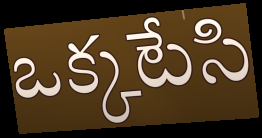
ఒక్కటేసి